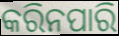
କରିନପାରି